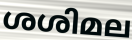
ശശിമല